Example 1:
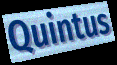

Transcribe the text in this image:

Quintus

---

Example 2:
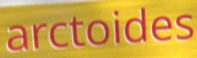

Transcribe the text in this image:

arctoides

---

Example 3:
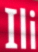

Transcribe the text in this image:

Ili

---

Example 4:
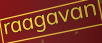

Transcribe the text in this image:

raagavan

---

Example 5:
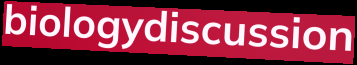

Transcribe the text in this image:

biologydiscussion